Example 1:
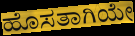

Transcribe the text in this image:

ಹೊಸತಾಗಿಯೇ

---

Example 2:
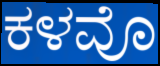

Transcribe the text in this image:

ಕಳವೊ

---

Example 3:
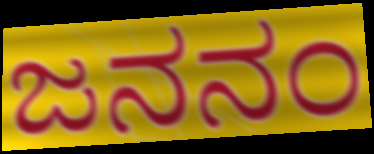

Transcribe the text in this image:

ಜನನಂ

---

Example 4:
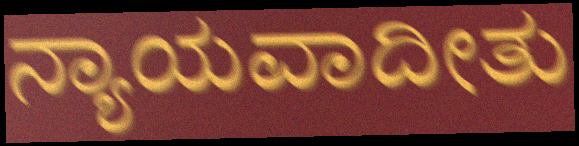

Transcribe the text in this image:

ನ್ಯಾಯವಾದೀತು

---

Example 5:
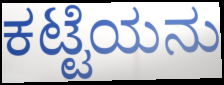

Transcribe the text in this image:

ಕಟ್ಟೆಯನು